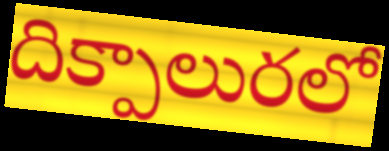
దిక్పాలురలో